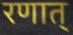
रणात्